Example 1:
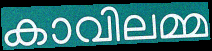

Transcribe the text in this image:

കാവിലമ്മ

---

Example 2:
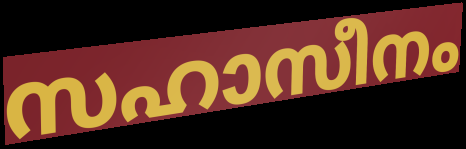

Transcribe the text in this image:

സഹാസീനം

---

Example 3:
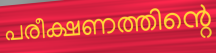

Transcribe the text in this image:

പരീക്ഷണത്തിന്റെ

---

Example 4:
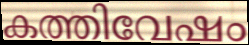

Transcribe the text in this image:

കത്തിവേഷം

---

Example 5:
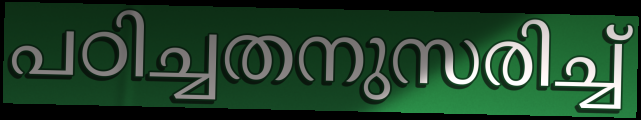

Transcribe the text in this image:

പഠിച്ചതനുസരിച്ച്